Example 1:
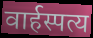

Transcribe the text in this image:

वार्हस्पत्य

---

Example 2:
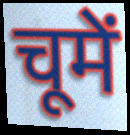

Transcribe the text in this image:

चूमें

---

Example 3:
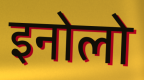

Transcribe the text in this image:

इनोलो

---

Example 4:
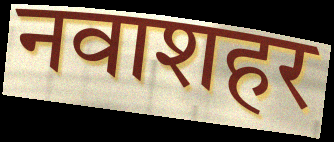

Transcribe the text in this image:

नवाशहर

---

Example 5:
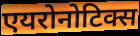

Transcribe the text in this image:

एयरोनोटिक्स